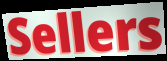
Sellers